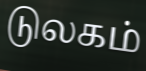
டுலகம்